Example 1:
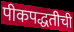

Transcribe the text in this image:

पीकपद्धतीची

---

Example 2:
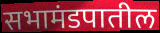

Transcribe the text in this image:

सभामंडपातील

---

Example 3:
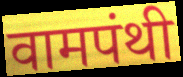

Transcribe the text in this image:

वामपंथी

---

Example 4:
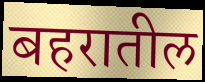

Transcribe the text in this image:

बहरातील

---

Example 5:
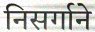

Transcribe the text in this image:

निसर्गाने